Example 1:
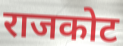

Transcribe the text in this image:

राजकोट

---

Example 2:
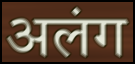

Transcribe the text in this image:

अलंग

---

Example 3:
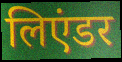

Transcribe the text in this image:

लिएंडर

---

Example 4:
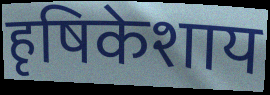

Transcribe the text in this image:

हृषिकेशाय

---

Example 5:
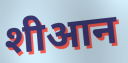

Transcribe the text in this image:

शीआन